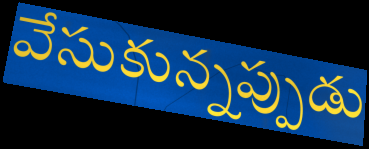
వేసుకున్నప్పుడు